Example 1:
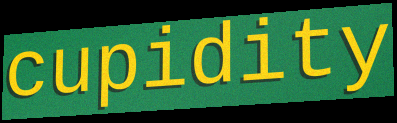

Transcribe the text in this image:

cupidity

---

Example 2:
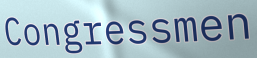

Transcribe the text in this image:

Congressmen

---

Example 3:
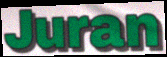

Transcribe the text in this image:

Juran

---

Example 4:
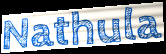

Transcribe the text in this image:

Nathula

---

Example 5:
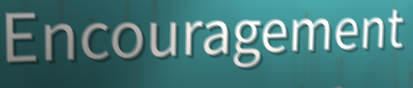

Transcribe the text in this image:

Encouragement